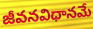
జీవనవిధానమే